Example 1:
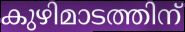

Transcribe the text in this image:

കുഴിമാടത്തിന്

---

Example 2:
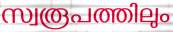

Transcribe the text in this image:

സ്വരൂപത്തിലും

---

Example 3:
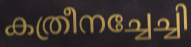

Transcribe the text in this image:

കത്രീനച്ചേച്ചി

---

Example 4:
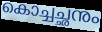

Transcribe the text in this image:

കൊച്ചച്ഛനും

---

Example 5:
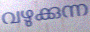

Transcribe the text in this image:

വഴുക്കുന്ന